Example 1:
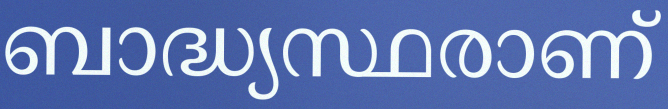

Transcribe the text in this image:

ബാദ്ധ്യസ്ഥരാണ്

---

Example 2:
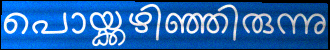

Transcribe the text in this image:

പൊയ്ക്കഴിഞ്ഞിരുന്നു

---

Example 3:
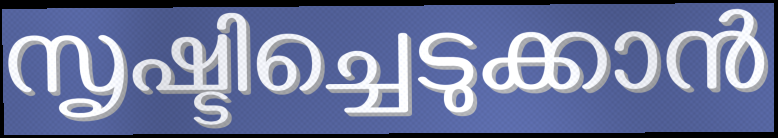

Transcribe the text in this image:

സൃഷ്ടിച്ചെടുക്കാൻ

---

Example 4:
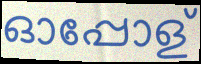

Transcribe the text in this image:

ഓപ്പോള്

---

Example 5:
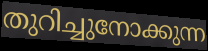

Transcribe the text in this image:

തുറിച്ചുനോക്കുന്ന